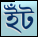
ইঁট